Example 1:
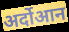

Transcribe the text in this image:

अर्दोआन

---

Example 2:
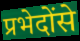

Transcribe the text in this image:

प्रभेदोंसे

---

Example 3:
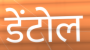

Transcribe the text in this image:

डेंटोल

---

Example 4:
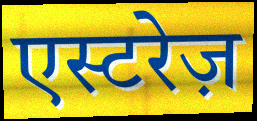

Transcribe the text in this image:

एस्टरेज़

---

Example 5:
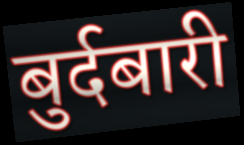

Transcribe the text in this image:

बुर्दबारी